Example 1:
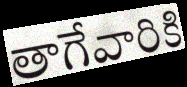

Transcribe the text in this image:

తాగేవారికి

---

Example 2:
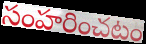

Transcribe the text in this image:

సంహరించటం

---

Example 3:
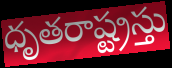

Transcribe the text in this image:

ధృతరాష్ట్రస్తు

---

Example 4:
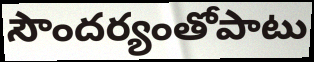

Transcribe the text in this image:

సౌందర్యంతోపాటు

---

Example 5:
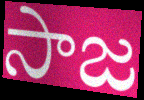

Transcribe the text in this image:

సాజ